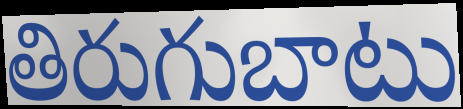
తిరుగుబాటు